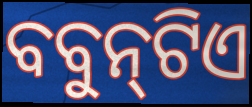
ବବୁନ୍‍ଟିଏ